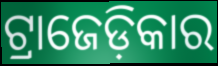
ଟ୍ରାଜେଡ଼ିକାର